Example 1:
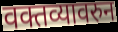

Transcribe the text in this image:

वक्तव्यावरुन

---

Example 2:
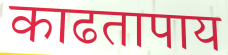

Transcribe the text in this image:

काढतापाय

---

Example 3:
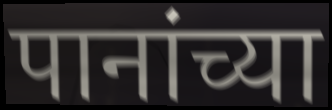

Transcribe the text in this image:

पानांच्या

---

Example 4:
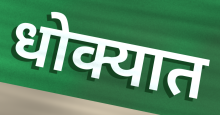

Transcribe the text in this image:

धोक्यात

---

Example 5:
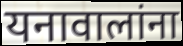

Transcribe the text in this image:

यनावालांना